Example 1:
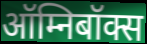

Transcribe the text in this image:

ऑम्निबॉक्स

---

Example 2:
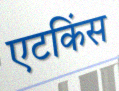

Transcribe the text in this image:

एटकिंस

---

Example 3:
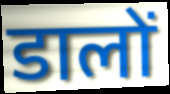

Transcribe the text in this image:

डालों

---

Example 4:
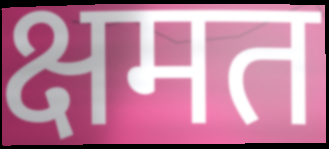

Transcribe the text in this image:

क्षमत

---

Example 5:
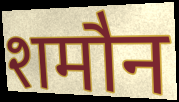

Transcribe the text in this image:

शमौन